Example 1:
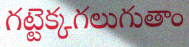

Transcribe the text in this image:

గట్టెక్కగలుగుతాం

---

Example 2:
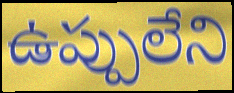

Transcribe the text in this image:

ఉప్పులేని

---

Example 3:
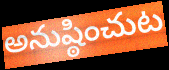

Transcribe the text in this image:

అనుష్ఠించుట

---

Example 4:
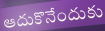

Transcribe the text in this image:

ఆదుకొనేందుకు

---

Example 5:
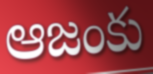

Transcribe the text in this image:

ఆజంకు